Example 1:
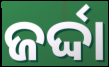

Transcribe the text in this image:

ଜର୍ଦ୍ଦା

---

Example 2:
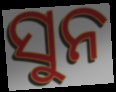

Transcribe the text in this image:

ସୁନ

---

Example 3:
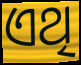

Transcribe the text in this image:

ଏଥି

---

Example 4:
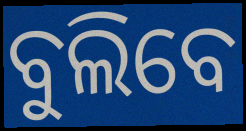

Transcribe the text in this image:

ବୁଲିବେ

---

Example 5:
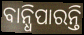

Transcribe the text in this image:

ବାନ୍ଧିପାରନ୍ତି